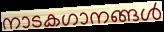
നാടകഗാനങ്ങൾ